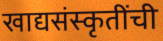
खाद्यसंस्कृतींची